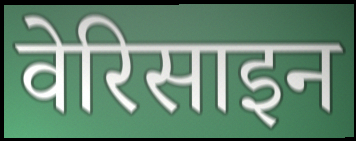
वेरिसाइन